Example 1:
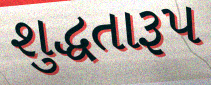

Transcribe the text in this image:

શુદ્ધતારૂપ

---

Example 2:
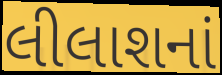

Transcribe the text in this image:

લીલાશનાં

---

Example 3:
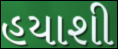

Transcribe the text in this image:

હયાશી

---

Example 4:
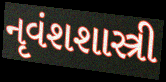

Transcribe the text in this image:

નૃવંશશાસ્ત્રી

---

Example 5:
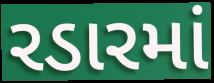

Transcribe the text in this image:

રડારમાં